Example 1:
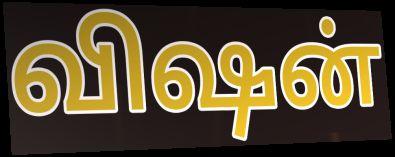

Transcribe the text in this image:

விஷன்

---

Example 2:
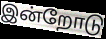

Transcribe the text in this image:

இன்றோடு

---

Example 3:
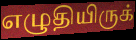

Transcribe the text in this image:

எழுதியிருக்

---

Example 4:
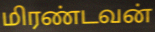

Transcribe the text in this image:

மிரண்டவன்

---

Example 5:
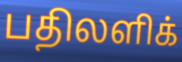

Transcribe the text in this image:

பதிலளிக்